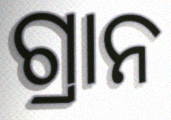
ଗ୍ରାନ